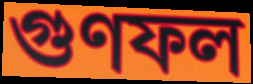
গুণফল